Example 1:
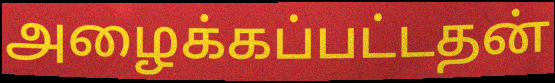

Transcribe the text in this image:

அழைக்கப்பட்டதன்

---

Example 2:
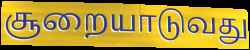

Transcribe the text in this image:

சூறையாடுவது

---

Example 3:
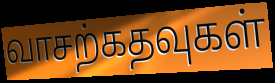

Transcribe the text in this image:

வாசற்கதவுகள்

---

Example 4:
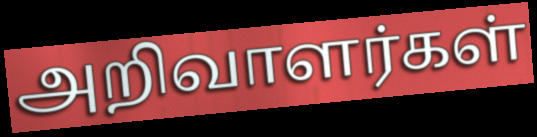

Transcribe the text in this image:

அறிவாளர்கள்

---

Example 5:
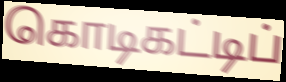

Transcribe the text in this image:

கொடிகட்டிப்